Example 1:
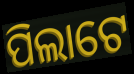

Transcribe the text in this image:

ପିଲାଟେ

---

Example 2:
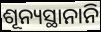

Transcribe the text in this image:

ଶୂନ୍ୟସ୍ଥାନାନି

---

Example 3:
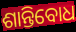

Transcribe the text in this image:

ଶାନ୍ତିବୋଧ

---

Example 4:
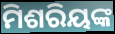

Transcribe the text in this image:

ମିଶରିୟଙ୍କ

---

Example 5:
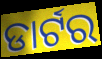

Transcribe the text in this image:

ଡାର୍ଟର